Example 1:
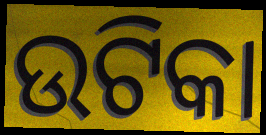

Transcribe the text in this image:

ଉଟିକା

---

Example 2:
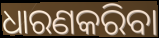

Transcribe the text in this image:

ଧାରଣକରିବା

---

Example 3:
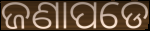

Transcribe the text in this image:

ଜଣାପଡେ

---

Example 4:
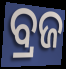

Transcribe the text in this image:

ବ୍ରଜ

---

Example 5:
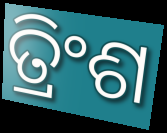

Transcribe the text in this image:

ତ୍ରିଂଶ